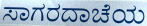
ಸಾಗರದಾಚೆಯ